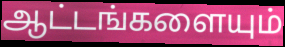
ஆட்டங்களையும்